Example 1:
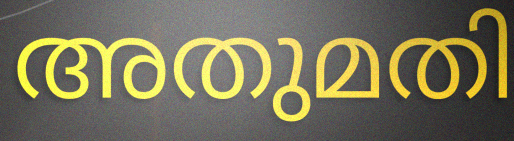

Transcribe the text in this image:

അതുമതി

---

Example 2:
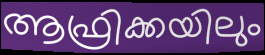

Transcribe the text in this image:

ആഫ്രിക്കയിലും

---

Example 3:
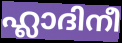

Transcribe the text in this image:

ഹ്ലാദിനീ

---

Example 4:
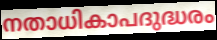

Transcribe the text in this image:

നതാധികാപദുദ്ധരം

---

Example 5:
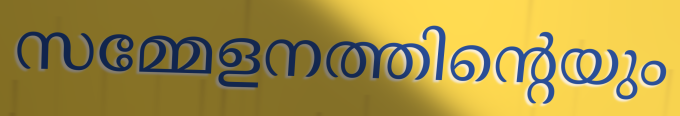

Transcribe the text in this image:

സമ്മേളനത്തിന്റെയും